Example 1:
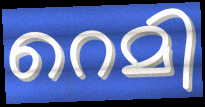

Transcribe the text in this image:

റെമി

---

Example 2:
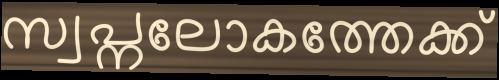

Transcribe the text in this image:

സ്വപ്നലോകത്തേക്ക്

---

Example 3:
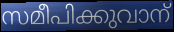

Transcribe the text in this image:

സമീപിക്കുവാന്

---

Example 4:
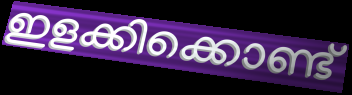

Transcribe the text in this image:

ഇളക്കിക്കൊണ്ട്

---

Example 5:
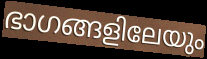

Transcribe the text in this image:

ഭാഗങ്ങളിലേയും